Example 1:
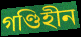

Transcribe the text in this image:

গণ্ডিহীন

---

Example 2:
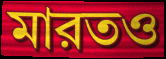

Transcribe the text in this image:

মারতও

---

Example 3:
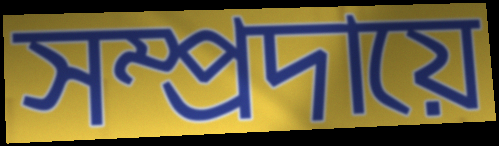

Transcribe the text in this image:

সম্প্রদায়ে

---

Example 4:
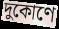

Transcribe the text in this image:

দুকোণে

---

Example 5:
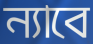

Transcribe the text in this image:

ন্যাবে